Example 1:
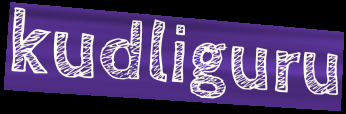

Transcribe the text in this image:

kudliguru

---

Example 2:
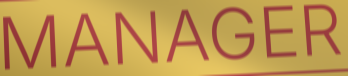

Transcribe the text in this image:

MANAGER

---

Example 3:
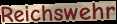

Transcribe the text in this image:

Reichswehr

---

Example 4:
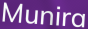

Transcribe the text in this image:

Munira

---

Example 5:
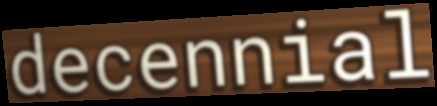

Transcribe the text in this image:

decennial